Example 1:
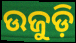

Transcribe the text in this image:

ଉଜୁଡ଼ି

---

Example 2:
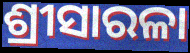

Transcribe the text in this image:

ଶ୍ରୀସାରଳା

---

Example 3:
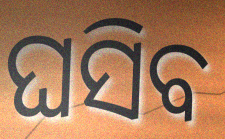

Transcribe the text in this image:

ଘସିବ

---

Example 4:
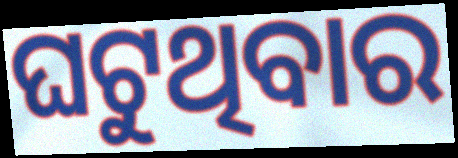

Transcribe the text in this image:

ଘଟୁଥିବାର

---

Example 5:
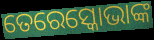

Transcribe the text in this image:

ତେରେସ୍କୋଭାଙ୍କ